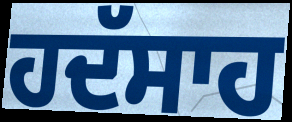
ਹਦੱਸਾਹ